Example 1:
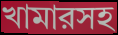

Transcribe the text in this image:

খামারসহ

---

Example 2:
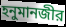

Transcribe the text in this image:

হনুমানজীর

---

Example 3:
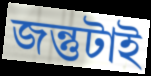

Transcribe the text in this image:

জন্তুটাই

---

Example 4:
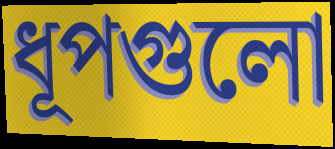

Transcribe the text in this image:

ধূপগুলো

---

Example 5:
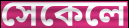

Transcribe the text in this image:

সেকেলে